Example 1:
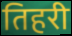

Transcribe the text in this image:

तिहरी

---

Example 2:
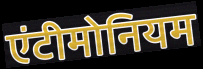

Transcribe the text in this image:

एंटीमोनियम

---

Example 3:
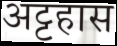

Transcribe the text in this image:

अट्टहास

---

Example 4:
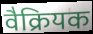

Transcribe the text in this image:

वैक्रियक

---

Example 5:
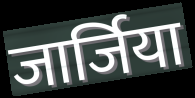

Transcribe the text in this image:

जार्जिया